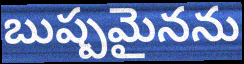
బుష్పమైనను